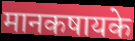
मानकषायके